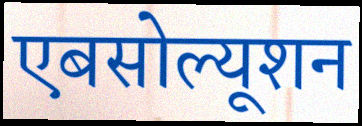
एबसोल्यूशन